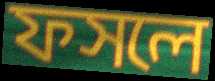
ফসলে